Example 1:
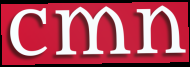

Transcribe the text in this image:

cmn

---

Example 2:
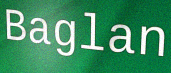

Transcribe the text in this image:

Baglan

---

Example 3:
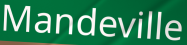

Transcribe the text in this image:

Mandeville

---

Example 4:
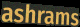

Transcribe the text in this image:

ashrams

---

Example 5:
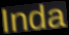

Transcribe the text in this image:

Inda